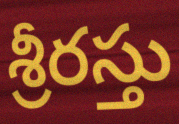
శ్రీరస్తు